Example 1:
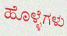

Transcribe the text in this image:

ಹೊಳ್ಳೆಗಳು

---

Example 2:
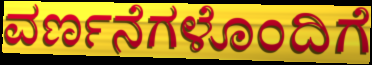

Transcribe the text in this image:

ವರ್ಣನೆಗಳೊಂದಿಗೆ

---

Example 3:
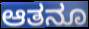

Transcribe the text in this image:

ಆತನೂ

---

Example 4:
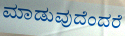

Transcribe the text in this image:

ಮಾಡುವುದೆಂದರೆ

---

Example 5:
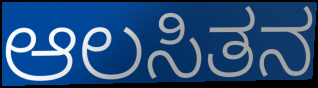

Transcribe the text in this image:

ಆಲಸಿತನ